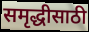
समृद्धीसाठी